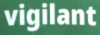
vigilant